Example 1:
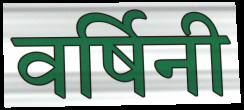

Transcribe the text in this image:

वर्षिनी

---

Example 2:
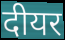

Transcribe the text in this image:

दीयर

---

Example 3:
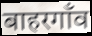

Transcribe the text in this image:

बाहरगाँव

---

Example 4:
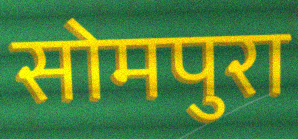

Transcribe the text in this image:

सोमपुरा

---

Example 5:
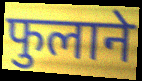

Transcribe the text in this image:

फुलाने